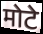
मोटे